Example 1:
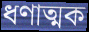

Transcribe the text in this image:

ধণাত্মক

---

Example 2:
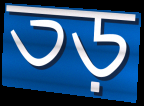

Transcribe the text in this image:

তড়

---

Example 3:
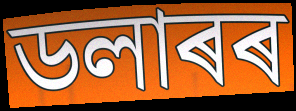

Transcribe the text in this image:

ডলাৰৰ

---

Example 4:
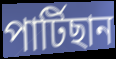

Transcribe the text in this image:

পাৰ্টিছান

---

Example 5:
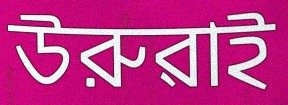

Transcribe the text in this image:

উৰুৱাই